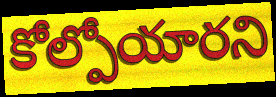
కోల్పోయారని